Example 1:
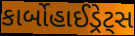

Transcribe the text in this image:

કાર્બોહાઈડ્રેટ્સ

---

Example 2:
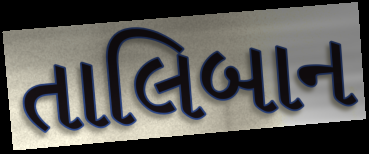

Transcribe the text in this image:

તાલિબાન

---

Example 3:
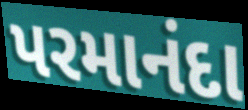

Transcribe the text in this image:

પરમાનંદા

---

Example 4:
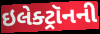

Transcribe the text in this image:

ઇલેક્ટ્રૉનની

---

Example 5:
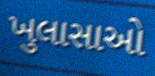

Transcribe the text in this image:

ખુલાસાઓ